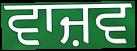
ਵਾਜ਼ਵ